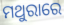
ମଥୁରାରେ